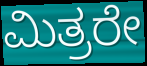
ಮಿತ್ರರೇ